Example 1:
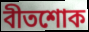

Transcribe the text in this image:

বীতশোক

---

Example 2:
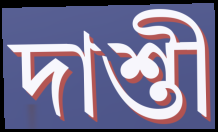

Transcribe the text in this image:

দাশ্তী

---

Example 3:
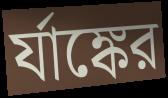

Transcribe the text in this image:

র্যাঙ্কের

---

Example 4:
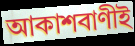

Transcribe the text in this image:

আকাশবাণীই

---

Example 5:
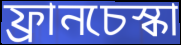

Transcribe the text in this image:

ফ্রানচেস্কা